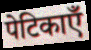
पेटिकाएँ